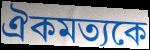
ঐকমত্যকে